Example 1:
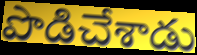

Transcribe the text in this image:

పొడిచేశాడు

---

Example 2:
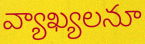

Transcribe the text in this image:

వ్యాఖ్యలనూ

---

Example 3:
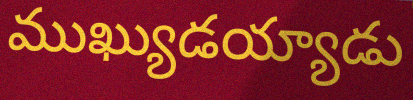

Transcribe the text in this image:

ముఖ్యుడయ్యాడు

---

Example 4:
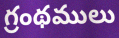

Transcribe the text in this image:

గ్రంథములు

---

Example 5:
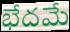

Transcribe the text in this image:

భేదమే